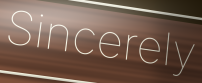
Sincerely